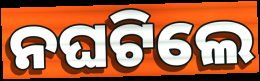
ନଘଟିଲେ